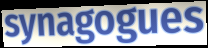
synagogues